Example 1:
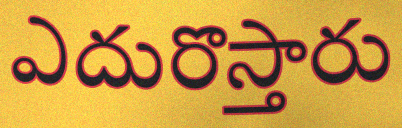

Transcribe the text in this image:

ఎదురొస్తారు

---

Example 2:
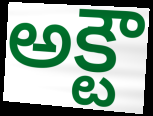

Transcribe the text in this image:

అక్టౌ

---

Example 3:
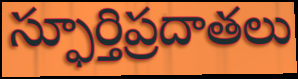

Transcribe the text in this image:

స్ఫూర్తిప్రదాతలు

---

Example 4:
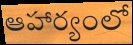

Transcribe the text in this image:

ఆహార్యంలో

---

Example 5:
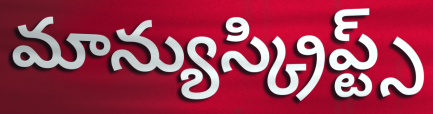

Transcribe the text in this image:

మాన్యుస్క్రిప్ట్స్